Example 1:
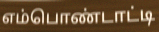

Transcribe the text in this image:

எம்பொண்டாட்டி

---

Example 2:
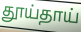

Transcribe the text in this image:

தூய்தாய்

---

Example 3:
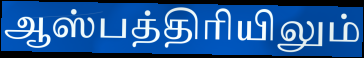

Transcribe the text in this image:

ஆஸ்பத்திரியிலும்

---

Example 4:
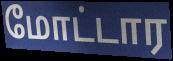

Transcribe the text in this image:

மோட்டார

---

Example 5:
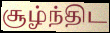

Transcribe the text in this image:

சூழ்ந்திட